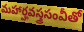
మహార్హవస్త్రసంవీతో